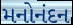
મનોનંદન